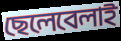
ছেলেবেলাই